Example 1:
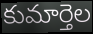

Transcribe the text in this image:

కుమార్తెల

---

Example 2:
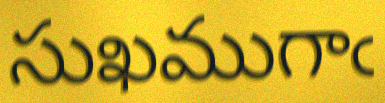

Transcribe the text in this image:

సుఖముగాఁ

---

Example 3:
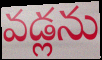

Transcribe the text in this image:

వడ్లను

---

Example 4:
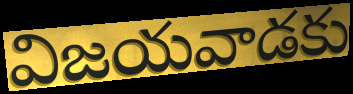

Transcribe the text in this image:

విజయవాడకు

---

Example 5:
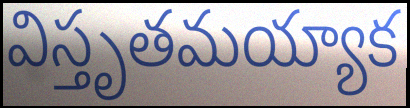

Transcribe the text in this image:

విస్తృతమయ్యాక